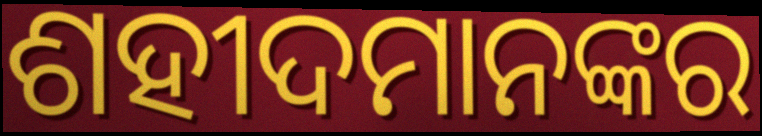
ଶହୀଦମାନଙ୍କର